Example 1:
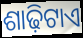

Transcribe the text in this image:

ଶାଢ଼ିଟାଏ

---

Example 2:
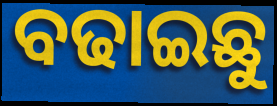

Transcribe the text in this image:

ବଢାଇଛୁ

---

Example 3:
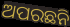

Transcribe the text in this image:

ଅପରଛନି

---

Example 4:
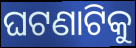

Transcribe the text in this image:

ଘଟଣାଟିକୁ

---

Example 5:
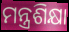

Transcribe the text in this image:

ମନ୍ତ୍ରଶିକ୍ଷା